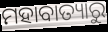
ମହାବାତ୍ୟାରୁ